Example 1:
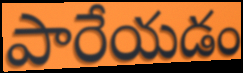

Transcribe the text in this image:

పారేయడం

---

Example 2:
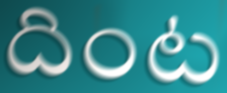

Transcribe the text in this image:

దింట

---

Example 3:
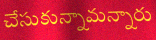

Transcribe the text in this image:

చేసుకున్నామన్నారు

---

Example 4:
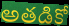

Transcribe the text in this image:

అతడికో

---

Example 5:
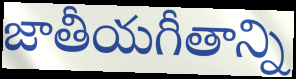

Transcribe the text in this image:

జాతీయగీతాన్ని